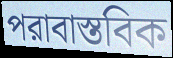
পরাবাস্তবিক